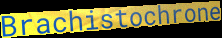
Brachistochrone